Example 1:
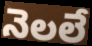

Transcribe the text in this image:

నెలలే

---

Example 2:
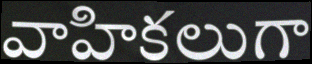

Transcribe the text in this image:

వాహికలుగా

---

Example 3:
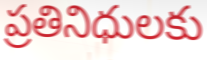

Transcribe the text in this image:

ప్రతినిధులకు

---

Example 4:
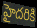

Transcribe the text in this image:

హైదరికి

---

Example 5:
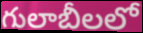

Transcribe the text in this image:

గులాబీలలో